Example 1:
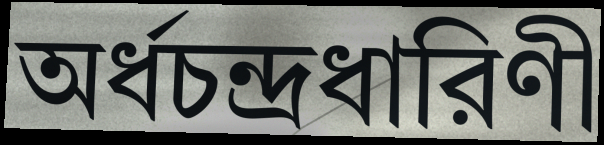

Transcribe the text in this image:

অর্ধচন্দ্রধারিণী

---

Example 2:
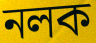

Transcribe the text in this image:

নলক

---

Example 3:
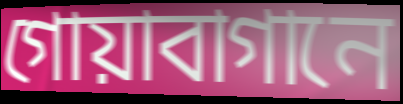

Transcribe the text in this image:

গোয়াবাগানে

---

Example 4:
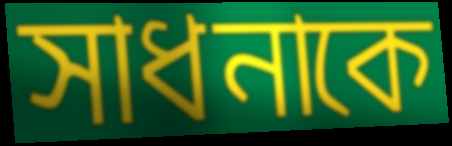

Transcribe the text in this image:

সাধনাকে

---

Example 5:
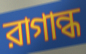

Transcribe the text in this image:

রাগান্ধ